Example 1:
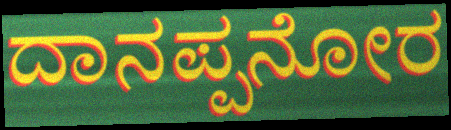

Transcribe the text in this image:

ದಾನಪ್ಪನೋರ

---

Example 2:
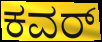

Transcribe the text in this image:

ಕವರ್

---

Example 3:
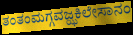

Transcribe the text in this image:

ತಂತಂಮಗ್ಗವಜ್ಝಕಿಲೇಸಾನಂ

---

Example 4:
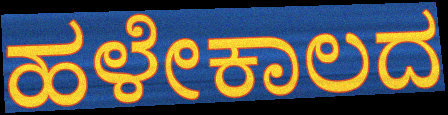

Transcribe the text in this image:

ಹಳೇಕಾಲದ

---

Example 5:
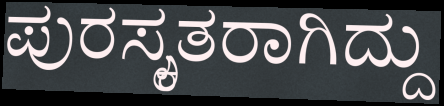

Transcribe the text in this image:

ಪುರಸ್ಕೃತರಾಗಿದ್ದು